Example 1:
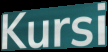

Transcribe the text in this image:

Kursi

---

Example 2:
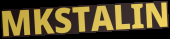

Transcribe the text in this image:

MKSTALIN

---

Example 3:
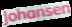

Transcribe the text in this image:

Johansen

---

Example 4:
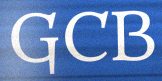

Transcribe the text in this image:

GCB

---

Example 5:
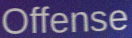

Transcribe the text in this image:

Offense